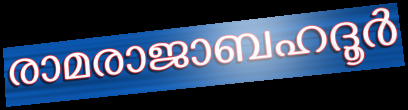
രാമരാജാബഹദൂർ